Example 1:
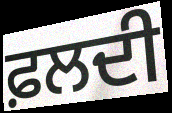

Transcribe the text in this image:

ਫ਼ਲਦੀ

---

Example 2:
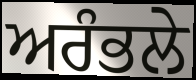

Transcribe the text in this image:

ਅਰੰਭਲੇ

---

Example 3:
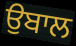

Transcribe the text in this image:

ਉਬਾਲ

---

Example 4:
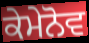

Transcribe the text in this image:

ਕੇਮੇਨੋਵ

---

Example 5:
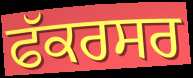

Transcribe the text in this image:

ਫੱਕਰਸਰ